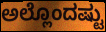
ಅಲ್ಲೊಂದಷ್ಟು